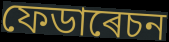
ফেডাৰেচন